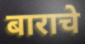
बाराचे